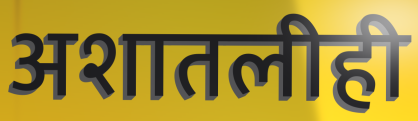
अशातलीही